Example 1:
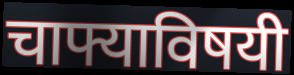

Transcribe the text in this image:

चाफ्याविषयी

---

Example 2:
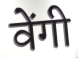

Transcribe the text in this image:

वेंगी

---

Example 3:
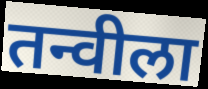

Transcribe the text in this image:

तन्वीला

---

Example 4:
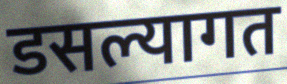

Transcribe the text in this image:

डसल्यागत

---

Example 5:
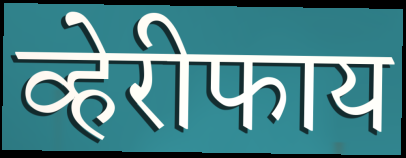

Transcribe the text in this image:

व्हेरीफाय